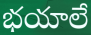
భయాలే